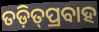
ତଡ଼ିତ୍‍ପ୍ରବାହ